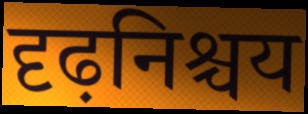
दृढ़निश्चय